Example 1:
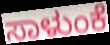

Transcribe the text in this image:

ಸಾಳುಂಕೆ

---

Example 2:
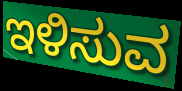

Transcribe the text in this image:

ಇಳಿಸುವ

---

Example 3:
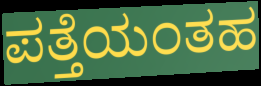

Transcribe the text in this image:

ಪತ್ತೆಯಂತಹ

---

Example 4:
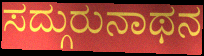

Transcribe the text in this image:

ಸದ್ಗುರುನಾಥನ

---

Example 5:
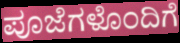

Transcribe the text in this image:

ಪೂಜೆಗಳೊಂದಿಗೆ